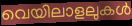
വെയിലാളലുകൾ